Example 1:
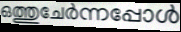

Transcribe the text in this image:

ഒത്തുചേർന്നപ്പോൾ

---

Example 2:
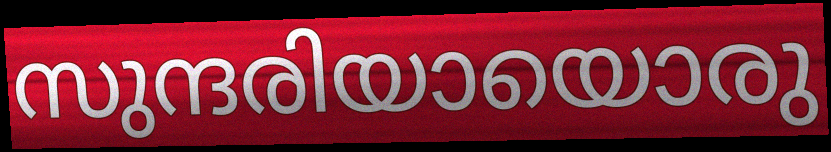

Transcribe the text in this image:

സുന്ദരിയായൊരു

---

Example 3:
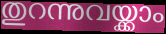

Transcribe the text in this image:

തുറന്നുവയ്ക്കാം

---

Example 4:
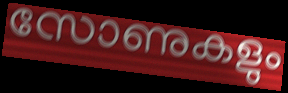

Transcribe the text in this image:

സോണുകളും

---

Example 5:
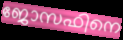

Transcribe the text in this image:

ജോസഫിനെ